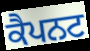
ਕੈਪਨਟ